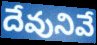
దేవునివే